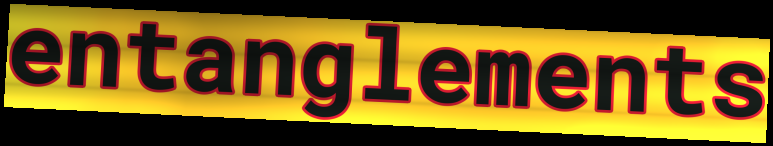
entanglements